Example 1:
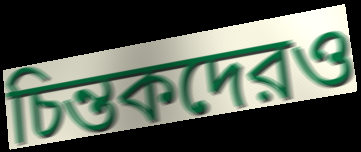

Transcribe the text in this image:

চিন্তকদেরও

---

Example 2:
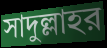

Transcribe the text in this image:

সাদুল্লাহর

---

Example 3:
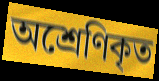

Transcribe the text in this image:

অশ্রেণিকৃত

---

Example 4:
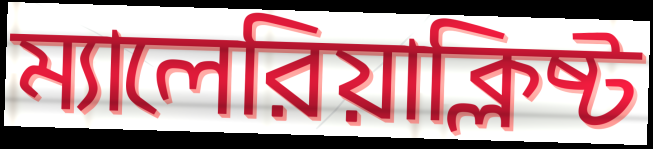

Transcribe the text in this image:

ম্যালেরিয়াক্লিষ্ট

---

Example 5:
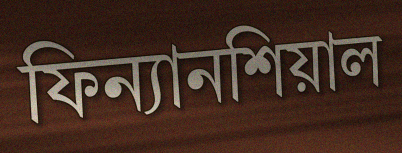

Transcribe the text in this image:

ফিন্যানশিয়াল